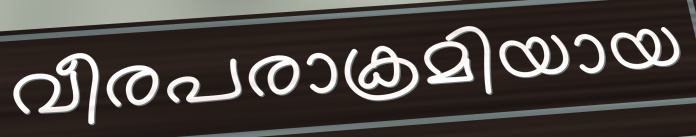
വീരപരാക്രമിയായ